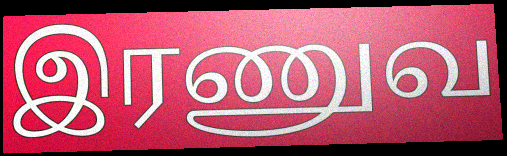
இரணுவ